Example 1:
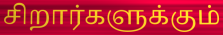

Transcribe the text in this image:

சிறார்களுக்கும்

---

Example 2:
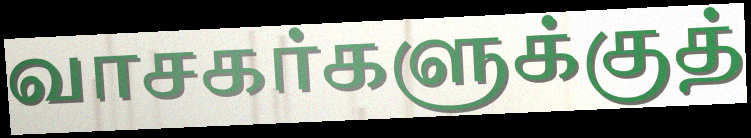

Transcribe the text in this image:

வாசகர்களுக்குத்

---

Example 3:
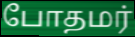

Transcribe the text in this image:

போதமர்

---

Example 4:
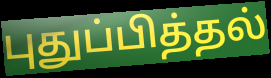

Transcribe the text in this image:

புதுப்பித்தல்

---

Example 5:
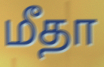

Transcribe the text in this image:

மீதா